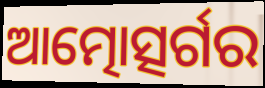
ଆତ୍ମୋତ୍ସର୍ଗର